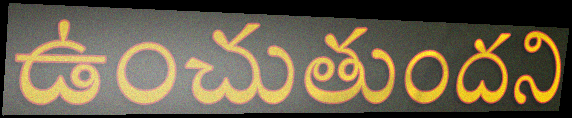
ఉంచుతుందని